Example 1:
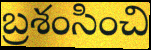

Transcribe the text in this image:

బ్రశంసించి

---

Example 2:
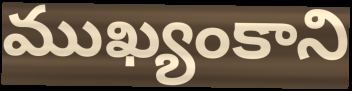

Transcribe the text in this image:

ముఖ్యంకాని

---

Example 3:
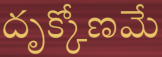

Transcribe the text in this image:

దృక్కోణమే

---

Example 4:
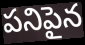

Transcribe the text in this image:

పనిపైన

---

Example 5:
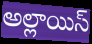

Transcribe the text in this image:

అల్లాయిస్